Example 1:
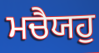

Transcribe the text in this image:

ਮਚੈਯਹੁ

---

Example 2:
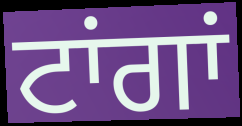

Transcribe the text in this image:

ਟਾਂਗਾਂ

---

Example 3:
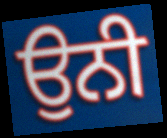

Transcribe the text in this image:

ਉਨੀ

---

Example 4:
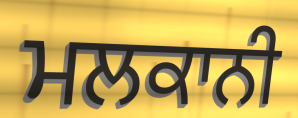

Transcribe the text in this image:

ਮਲਕਾਨੀ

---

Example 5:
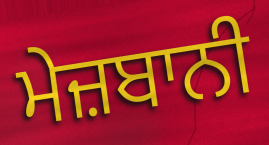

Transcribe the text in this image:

ਮੇਜ਼ਬਾਨੀ